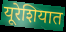
यूरेशियात